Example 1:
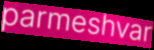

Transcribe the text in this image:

parmeshvar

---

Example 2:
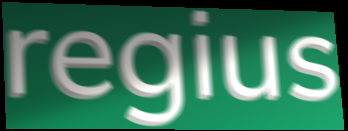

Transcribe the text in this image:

regius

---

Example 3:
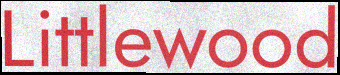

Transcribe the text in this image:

Littlewood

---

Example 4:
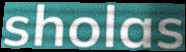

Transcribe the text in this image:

sholas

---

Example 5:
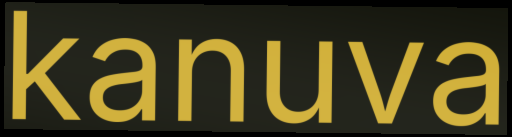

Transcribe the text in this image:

kanuva